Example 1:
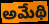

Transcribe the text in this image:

అమేథి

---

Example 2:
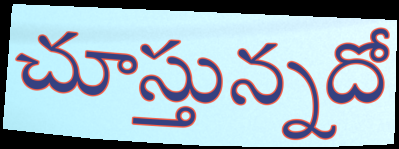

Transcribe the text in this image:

చూస్తున్నదో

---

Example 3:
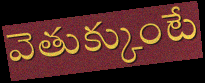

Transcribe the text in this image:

వెతుక్కుంటే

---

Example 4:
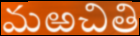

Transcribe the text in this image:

మఱచితి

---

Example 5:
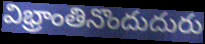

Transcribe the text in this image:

విభ్రాంతినొందుదురు